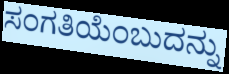
ಸಂಗತಿಯೆಂಬುದನ್ನು